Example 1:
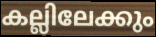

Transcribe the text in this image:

കല്ലിലേക്കും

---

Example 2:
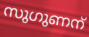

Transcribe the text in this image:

സുഗുണന്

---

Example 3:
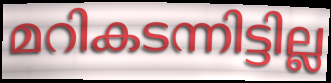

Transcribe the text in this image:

മറികടന്നിട്ടില്ല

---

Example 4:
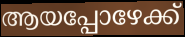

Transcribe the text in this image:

ആയപ്പോഴേക്ക്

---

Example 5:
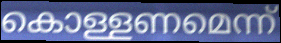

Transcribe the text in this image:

കൊള്ളണമെന്ന്